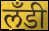
लँडी